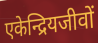
एकेन्द्रियजीवों